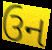
ઉન